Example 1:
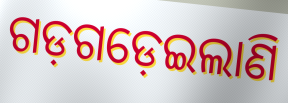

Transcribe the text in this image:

ଗଡ଼ଗଡ଼େଇଲାଣି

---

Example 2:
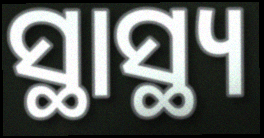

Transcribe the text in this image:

ସ୍ଥାସ୍ଥ୍ୟ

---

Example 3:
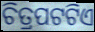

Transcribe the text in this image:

ଚିତ୍ରପଟଟିଏ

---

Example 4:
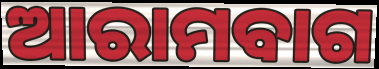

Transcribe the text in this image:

ଆରାମବାଗ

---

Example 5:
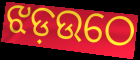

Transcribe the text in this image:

ଝଡ଼ଉଠେ